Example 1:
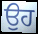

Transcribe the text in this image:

ਉੁਹ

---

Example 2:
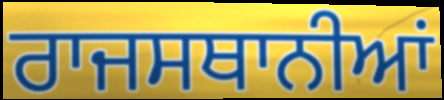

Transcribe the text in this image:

ਰਾਜਸਥਾਨੀਆਂ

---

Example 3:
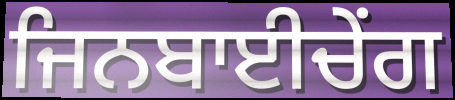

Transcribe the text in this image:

ਜਿਨਬਾਈਚੇਂਗ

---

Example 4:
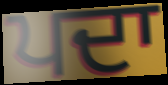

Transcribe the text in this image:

ਪਦਾ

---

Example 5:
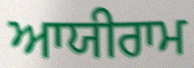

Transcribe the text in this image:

ਆਯੀਰਾਮ